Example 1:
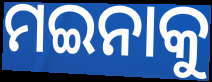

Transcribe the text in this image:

ମଇନାକୁ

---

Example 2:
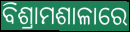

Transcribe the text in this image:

ବିଶ୍ରାମଶାଳାରେ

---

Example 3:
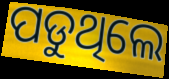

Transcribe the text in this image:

ପଡୁଥିଲେ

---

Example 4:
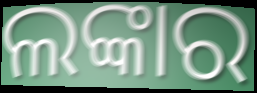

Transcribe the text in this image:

ଲଙ୍କାର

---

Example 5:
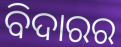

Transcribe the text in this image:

ବିଦାରର